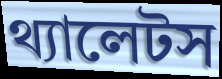
থ্যালেটস